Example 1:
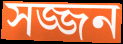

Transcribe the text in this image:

সজ্জন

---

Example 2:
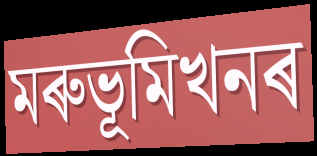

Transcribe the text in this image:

মৰুভূমিখনৰ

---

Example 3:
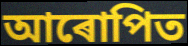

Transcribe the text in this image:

আৰোপিত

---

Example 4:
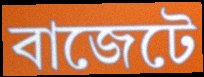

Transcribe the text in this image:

বাজেটে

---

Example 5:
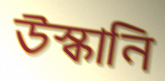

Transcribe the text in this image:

উস্কানি